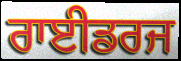
ਰਾਈਡਰਜ